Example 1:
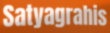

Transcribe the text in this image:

Satyagrahis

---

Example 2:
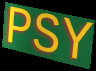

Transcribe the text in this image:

PSY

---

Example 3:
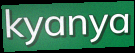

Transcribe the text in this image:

kyanya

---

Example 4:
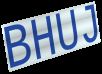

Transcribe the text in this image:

BHUJ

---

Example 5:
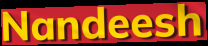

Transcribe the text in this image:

Nandeesh